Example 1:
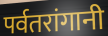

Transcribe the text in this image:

पर्वतरांगानी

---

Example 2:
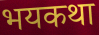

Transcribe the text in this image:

भयकथा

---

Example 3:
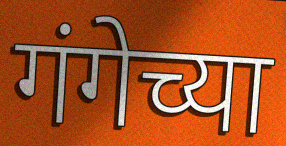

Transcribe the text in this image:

गंगेच्या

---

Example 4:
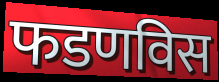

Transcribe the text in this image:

फडणविस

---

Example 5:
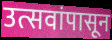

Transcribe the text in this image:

उत्सवांपासून